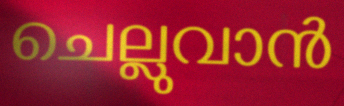
ചെല്ലുവാൻ